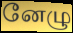
னேழு